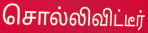
சொல்லிவிட்டீர்